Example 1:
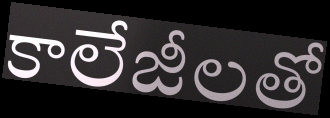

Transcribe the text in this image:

కాలేజీలతో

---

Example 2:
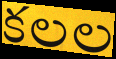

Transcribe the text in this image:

కలల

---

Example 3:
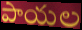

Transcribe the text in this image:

పాయల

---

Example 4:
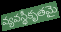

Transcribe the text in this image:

వ్యవస్థీకృతమై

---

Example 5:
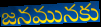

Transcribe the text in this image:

జనమునకు